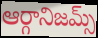
ఆర్గానిజమ్స్